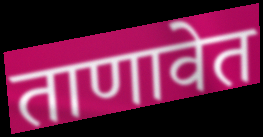
ताणावेत